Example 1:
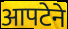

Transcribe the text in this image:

आपटेने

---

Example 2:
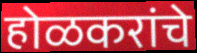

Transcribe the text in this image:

होळकरांचे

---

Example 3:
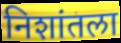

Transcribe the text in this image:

निशांतला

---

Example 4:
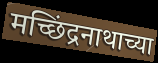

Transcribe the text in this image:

मच्छिंद्रनाथाच्या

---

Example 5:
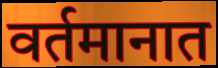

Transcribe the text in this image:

वर्तमानात